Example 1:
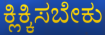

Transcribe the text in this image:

ಕ್ಲಿಕ್ಕಿಸಬೇಕು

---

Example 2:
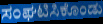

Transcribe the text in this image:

ಸಂಘಟಿಸಿಕೊಂಡು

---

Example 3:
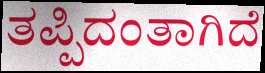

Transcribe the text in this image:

ತಪ್ಪಿದಂತಾಗಿದೆ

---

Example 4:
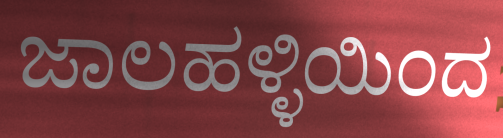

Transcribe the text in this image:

ಜಾಲಹಳ್ಳಿಯಿಂದ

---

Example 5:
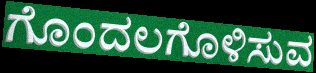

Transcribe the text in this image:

ಗೊಂದಲಗೊಳಿಸುವ